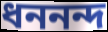
ধননন্দ